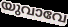
യുവാവേ